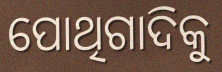
ପୋଥିଗାଦିକୁ